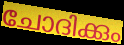
ചോദിക്കും